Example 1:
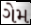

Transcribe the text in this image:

ગેમ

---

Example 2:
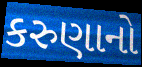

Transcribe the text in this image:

કરુણાનો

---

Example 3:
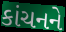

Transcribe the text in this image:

કાંચનને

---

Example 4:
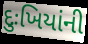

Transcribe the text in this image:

દુઃખિયાંની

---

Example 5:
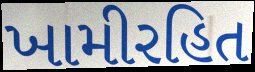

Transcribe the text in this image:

ખામીરહિત